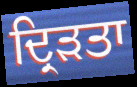
ਦ੍ਰਿੜਤਾ